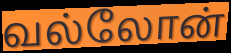
வல்லோன்